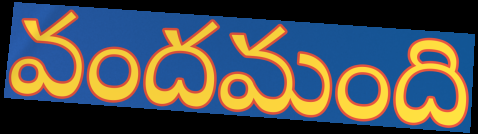
వందమంది